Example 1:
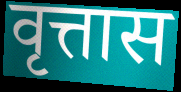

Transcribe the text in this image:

वृत्तास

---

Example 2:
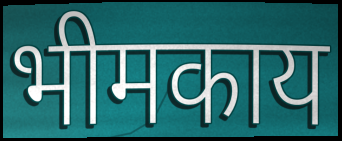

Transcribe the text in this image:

भीमकाय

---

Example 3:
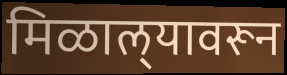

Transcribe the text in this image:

मिळाल्यावरून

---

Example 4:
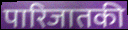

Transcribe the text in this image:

पारिजातकी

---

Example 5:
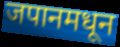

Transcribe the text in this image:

जपानमधून